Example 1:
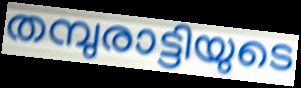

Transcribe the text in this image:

തമ്പുരാട്ടിയുടെ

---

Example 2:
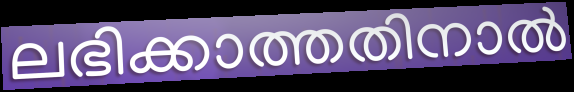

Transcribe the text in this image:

ലഭിക്കാത്തതിനാൽ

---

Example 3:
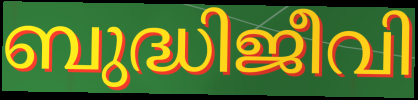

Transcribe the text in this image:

ബുദ്ധിജീവി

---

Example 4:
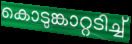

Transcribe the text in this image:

കൊടുങ്കാറ്റടിച്ച്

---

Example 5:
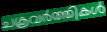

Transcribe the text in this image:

ചക്രവർത്തികൾ